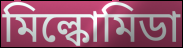
মিল্কোমিডা